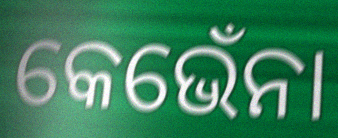
କେଭେଁନା